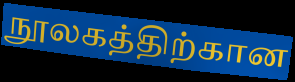
நூலகத்திற்கான